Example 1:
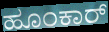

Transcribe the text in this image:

ಹೂಂಕಾರ್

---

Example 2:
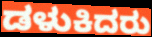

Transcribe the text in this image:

ಡಳುಕಿದರು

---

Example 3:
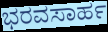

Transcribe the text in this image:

ಭರವಸಾರ್ಹ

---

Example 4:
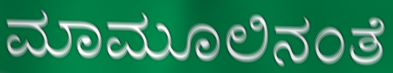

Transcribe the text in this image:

ಮಾಮೂಲಿನಂತೆ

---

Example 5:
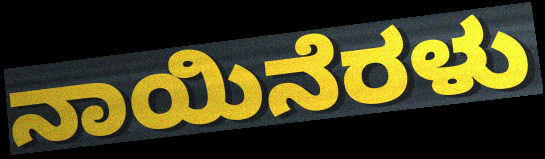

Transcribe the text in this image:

ನಾಯಿನೆರಳು